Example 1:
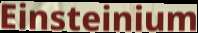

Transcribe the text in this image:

Einsteinium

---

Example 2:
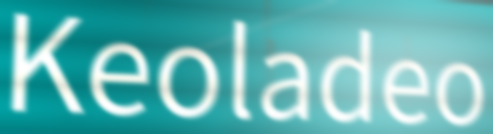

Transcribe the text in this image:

Keoladeo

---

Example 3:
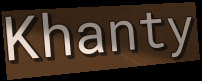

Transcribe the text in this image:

Khanty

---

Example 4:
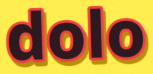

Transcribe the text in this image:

dolo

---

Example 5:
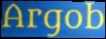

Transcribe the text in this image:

Argob